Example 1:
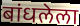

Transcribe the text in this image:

बांधलेला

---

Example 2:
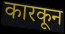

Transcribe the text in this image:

कारकून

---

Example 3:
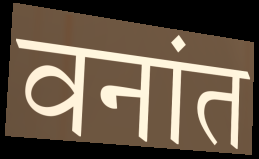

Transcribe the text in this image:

वनांत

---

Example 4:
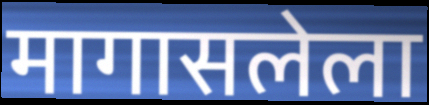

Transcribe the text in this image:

मागासलेला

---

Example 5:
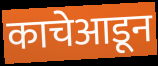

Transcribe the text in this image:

काचेआडून